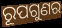
ରୂପଗୁଣର